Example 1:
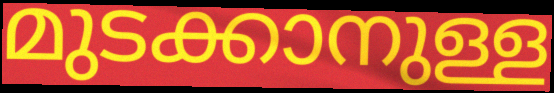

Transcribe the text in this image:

മുടക്കാനുള്ള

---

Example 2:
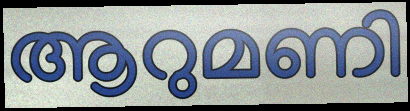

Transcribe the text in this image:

ആറുമണി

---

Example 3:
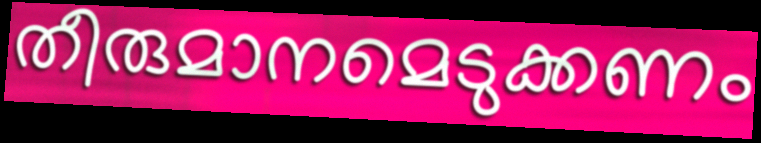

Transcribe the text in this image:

തീരുമാനമെടുക്കണം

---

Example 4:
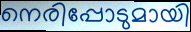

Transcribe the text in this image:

നെരിപ്പോടുമായി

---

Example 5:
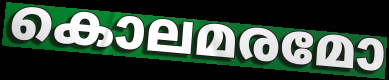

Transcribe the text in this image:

കൊലമരമോ